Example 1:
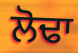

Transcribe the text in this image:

ਲੋਢਾ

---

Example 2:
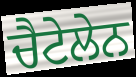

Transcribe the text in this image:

ਚੈਟੇਲੇਨ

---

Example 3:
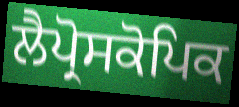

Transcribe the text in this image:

ਲੈਪ੍ਰੋਸਕੋਪਿਕ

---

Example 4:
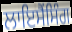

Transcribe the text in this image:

ਲਾਇਸੈਂਸਿੰਗ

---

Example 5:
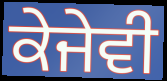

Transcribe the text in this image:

ਕੇਜੇਵੀ